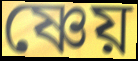
ষ্ণেয়